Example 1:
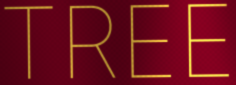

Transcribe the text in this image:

TREE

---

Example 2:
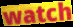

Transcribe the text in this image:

watch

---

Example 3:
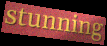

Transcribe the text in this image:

stunning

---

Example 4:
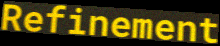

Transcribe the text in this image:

Refinement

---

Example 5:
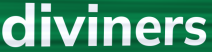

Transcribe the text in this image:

diviners